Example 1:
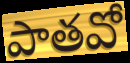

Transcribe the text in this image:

పాతవో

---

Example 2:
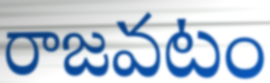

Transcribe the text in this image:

రాజవటం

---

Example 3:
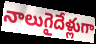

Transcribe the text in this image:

నాలుగైదేళ్లుగా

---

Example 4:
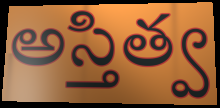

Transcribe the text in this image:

అస్తిత్వ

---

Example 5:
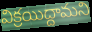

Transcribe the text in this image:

విక్రయిద్దామని